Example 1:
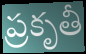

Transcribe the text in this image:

ప్రకృతీ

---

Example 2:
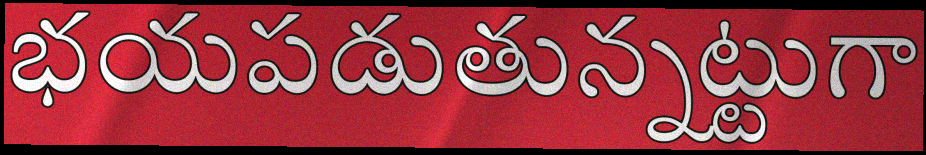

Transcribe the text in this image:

భయపడుతున్నట్టుగా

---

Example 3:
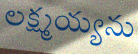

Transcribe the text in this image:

లక్ష్మయ్యను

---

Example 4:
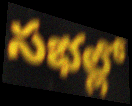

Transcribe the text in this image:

సభల్లో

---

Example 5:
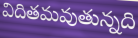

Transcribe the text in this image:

విదితమవుతున్నది